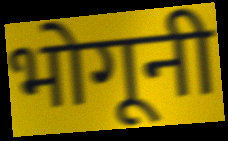
भोगूनी